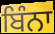
ਬਿੰਨਾ